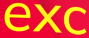
exc